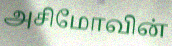
அசிமோவின்